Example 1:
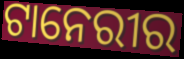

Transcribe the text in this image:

ଟାନେରୀର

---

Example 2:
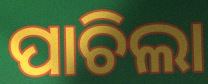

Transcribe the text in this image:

ପାଚିଲା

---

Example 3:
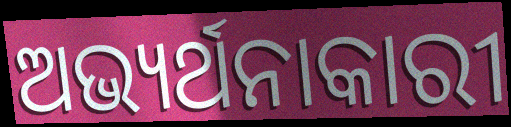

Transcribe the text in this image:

ଅଭ୍ୟର୍ଥନାକାରୀ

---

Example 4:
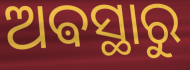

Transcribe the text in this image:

ଅଵସ୍ଥାରୁ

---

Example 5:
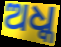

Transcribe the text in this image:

ଅଧ୍କ